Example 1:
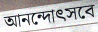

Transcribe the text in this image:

আনন্দোৎসবে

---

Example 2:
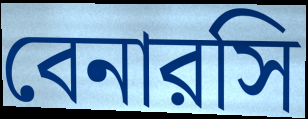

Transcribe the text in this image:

বেনারসি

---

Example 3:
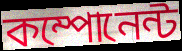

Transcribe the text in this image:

কম্পোনেন্ট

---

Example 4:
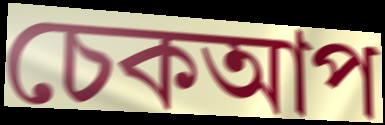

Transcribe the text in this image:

চেকআপ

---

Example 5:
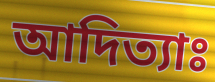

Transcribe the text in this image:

আদিত্যাঃ